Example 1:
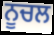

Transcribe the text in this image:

ਨੂਚਲ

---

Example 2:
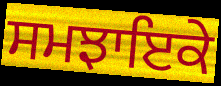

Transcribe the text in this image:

ਸਮਝਾਇਕੇ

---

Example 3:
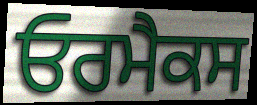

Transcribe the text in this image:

ਓਰਮੈਕਸ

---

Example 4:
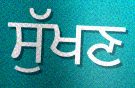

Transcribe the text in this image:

ਸੁੱਖਣ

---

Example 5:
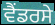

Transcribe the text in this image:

ਵੈਂਡਰਸੇ